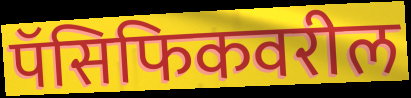
पॅसिफिकवरील